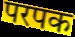
परपक